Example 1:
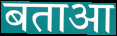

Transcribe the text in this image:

बताआ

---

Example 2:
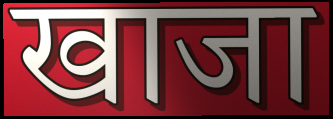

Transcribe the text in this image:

खाजा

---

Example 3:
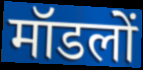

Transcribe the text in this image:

मॉडलों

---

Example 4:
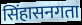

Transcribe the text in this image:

सिंहासनगता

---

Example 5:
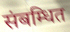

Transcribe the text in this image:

संबम्धित